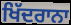
ਖਿੱਦਰਾਨਾ